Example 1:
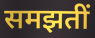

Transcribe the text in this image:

समझतीं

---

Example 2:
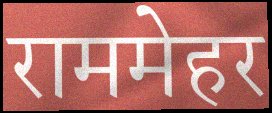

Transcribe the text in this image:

राममेहर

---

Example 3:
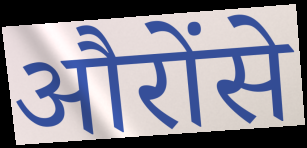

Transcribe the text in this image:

औरोंसे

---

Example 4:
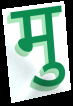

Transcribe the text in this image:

मु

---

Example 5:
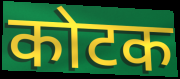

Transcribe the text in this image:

कोटक